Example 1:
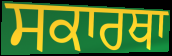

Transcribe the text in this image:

ਸਕਾਰਥਾ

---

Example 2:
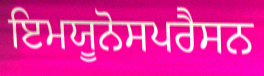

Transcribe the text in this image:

ਇਮਯੂਨੋਸਪਰੈਸਨ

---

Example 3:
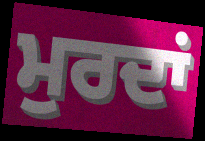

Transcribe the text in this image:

ਮੁਰਦਾਂ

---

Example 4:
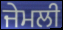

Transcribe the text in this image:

ਜੇਮਲੀ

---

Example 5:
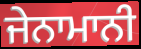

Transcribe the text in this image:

ਜੇਨਾਮਾਨੀ